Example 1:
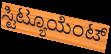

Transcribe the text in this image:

ಸ್ಟಿಟ್ಯೂಯೆಂಟ್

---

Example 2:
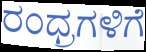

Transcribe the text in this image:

ರಂಧ್ರಗಳಿಗೆ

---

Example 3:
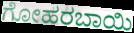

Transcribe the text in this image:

ಗೋಹರಬಾಯಿ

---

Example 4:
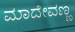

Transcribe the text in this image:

ಮಾದೇವಣ್ಣ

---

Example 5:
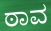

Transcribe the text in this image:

ಠಾವ